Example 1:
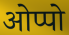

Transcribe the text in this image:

ओप्पो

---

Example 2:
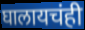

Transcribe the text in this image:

घालायचंही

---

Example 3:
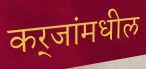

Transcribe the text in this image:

कर्जांमधील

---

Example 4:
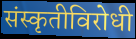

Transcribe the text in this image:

संस्कृतीविरोधी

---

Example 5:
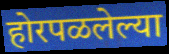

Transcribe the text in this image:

होरपळलेल्या